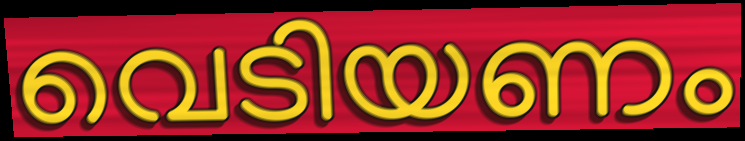
വെടിയണം